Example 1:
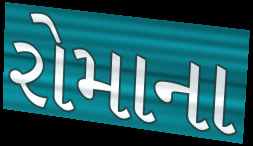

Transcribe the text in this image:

રોમાના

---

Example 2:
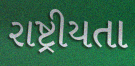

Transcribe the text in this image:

રાષ્ટ્રીયતા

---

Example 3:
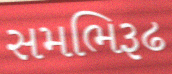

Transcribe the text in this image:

સમભિરૂઢ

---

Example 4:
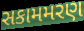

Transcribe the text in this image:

સકામમરણ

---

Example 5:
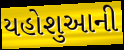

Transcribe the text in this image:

યહોશુઆની